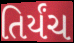
તિર્યંચ